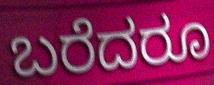
ಬರೆದರೂ